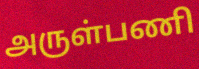
அருள்பணி